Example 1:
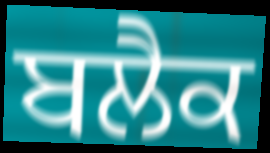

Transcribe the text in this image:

ਬਲੈਕ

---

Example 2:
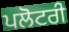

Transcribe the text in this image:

ਪਲੋਟਰੀ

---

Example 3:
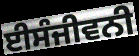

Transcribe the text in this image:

ਈਸੰਜੀਵਨੀ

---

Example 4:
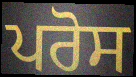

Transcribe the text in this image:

ਪਰੋਸ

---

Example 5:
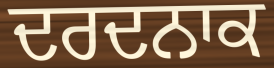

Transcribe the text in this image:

ਦਰਦਨਾਕ